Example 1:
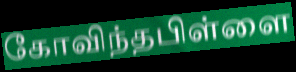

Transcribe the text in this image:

கோவிந்தபிள்ளை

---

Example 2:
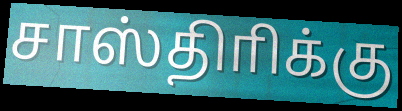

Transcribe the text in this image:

சாஸ்திரிக்கு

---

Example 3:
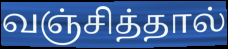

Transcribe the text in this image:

வஞ்சித்தால்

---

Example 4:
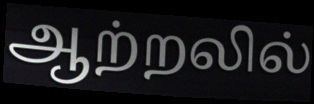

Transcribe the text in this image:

ஆற்றலில்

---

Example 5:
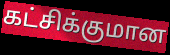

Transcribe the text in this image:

கட்சிக்குமான